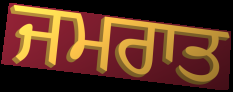
ਜਮਰਾਤ